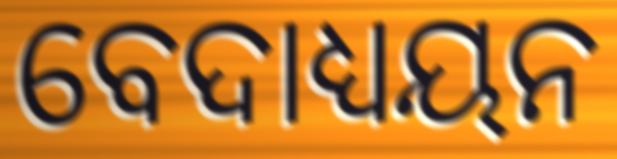
ବେଦାଧ୍ୟୟନ